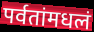
पर्वतांमधलं